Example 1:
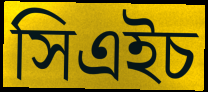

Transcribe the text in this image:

সিএইচ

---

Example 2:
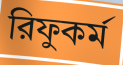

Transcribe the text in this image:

রিফুকর্ম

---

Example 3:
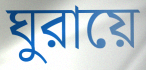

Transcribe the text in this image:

ঘুরায়ে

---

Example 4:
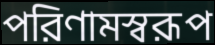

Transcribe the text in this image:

পরিণামস্বরূপ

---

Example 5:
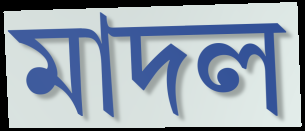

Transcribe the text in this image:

মাদল